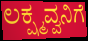
ಲಕ್ಷ್ಮವ್ವನಿಗೆ